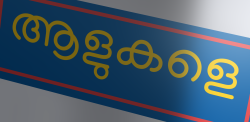
ആളുകളെ